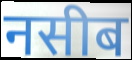
नसीब